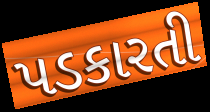
પડકારતી